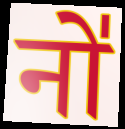
नो॑